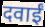
दवाईं